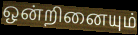
ஒன்றினையும்